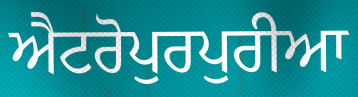
ਐਟਰੋਪੁਰਪੁਰੀਆ